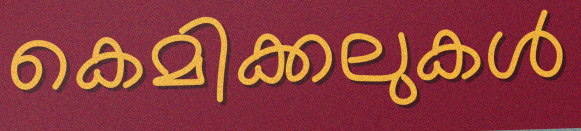
കെമിക്കലുകൾ